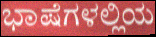
ಭಾಷೆಗಳಲ್ಲಿಯ